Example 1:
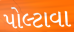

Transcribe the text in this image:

પોલ્ટાવા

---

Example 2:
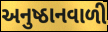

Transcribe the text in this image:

અનુષ્ઠાનવાળી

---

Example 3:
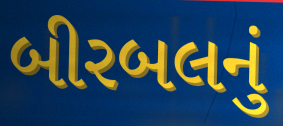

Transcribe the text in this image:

બીરબલનું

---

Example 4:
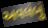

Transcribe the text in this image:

અવલંબું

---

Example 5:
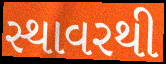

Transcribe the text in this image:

સ્થાવરથી